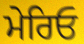
ਮੇਰਿਓ